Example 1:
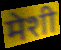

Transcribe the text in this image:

मेशी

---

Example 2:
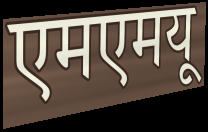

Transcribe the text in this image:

एमएमयू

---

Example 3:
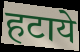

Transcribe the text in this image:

हटाये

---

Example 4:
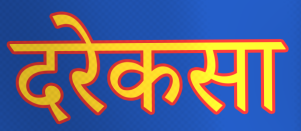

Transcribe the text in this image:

दरेकसा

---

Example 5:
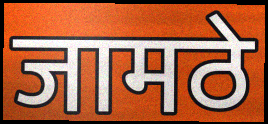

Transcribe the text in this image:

जामठे